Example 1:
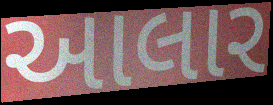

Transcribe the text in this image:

આલાર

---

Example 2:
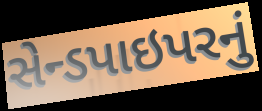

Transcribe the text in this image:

સેન્ડપાઇપરનું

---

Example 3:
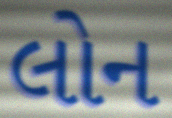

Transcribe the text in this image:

લોન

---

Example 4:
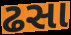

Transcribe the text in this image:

ઢસા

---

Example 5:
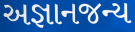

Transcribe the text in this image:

અજ્ઞાનજન્ય